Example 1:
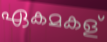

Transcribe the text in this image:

ഏകമകള്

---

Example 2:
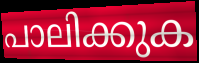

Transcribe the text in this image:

പാലിക്കുക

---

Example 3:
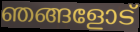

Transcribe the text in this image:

ഞങ്ങളോട്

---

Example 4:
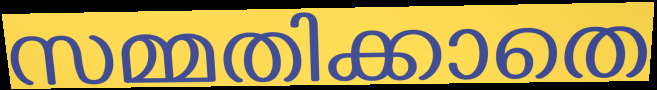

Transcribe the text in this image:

സമ്മതിക്കാതെ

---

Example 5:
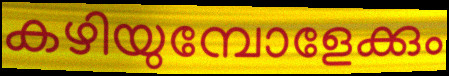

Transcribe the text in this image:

കഴിയുമ്പോളേക്കും